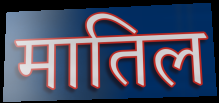
मातिल